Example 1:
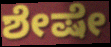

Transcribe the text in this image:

ಶೇಷೇ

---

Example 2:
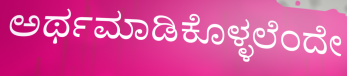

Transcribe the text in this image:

ಅರ್ಥಮಾಡಿಕೊಳ್ಳಲೆಂದೇ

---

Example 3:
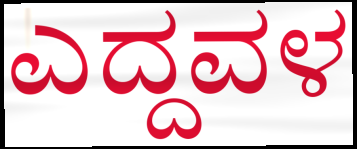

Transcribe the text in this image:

ಎದ್ದವಳ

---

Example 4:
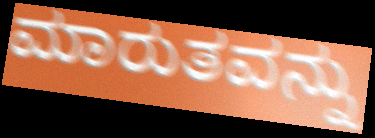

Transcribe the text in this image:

ಮಾರುತವನ್ನು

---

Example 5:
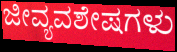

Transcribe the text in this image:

ಜೀವ್ಯವಶೇಷಗಳು